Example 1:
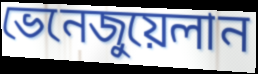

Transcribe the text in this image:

ভেনেজুয়েলান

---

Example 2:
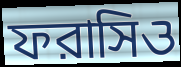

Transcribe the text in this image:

ফরাসিও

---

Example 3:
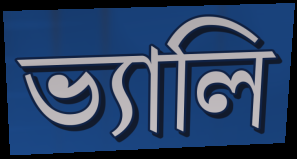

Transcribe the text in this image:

ভ্যালি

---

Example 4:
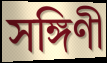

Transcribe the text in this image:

সঙ্গিণী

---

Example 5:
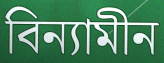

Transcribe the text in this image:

বিন্যামীন